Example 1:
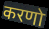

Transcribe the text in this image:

करणो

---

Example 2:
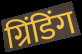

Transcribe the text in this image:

ग्रिंडिंग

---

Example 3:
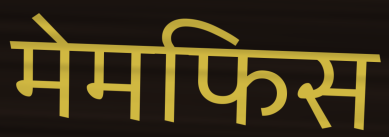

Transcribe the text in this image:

मेमफिस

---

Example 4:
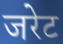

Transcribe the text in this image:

जरेट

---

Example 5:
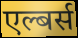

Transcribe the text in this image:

एल्बर्स